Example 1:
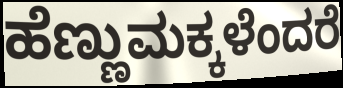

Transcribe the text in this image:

ಹೆಣ್ಣುಮಕ್ಕಳೆಂದರೆ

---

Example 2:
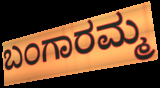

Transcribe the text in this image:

ಬಂಗಾರಮ್ಮ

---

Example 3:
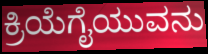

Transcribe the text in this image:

ಕ್ರಿಯೆಗೈಯುವನು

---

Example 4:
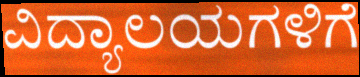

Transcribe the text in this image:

ವಿದ್ಯಾಲಯಗಳಿಗೆ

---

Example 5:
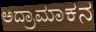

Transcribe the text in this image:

ಅದ್ರಾಮಾಕನ